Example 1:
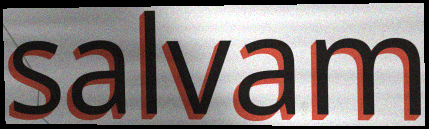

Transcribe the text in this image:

salvam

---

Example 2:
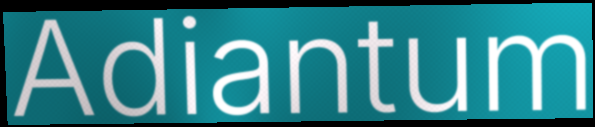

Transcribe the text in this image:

Adiantum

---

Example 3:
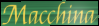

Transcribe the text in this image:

Macchina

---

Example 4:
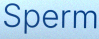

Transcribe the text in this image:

Sperm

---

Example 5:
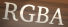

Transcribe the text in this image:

RGBA